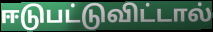
ஈடுபட்டுவிட்டால்